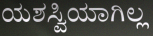
ಯಶಸ್ವಿಯಾಗಿಲ್ಲ